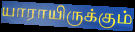
யாராயிருக்கும்